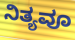
ನಿತ್ಯವೂ